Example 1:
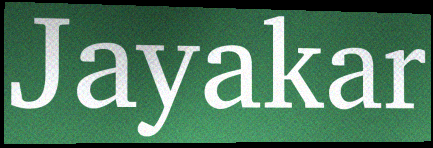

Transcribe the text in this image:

Jayakar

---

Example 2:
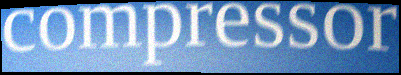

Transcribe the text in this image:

compressor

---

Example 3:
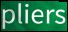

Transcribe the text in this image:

pliers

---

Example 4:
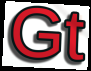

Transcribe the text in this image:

Gt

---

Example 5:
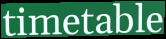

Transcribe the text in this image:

timetable